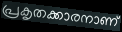
പ്രകൃതക്കാരനാണ്